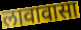
लावावासा